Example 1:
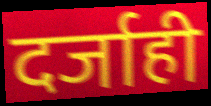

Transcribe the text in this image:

दर्जाही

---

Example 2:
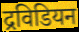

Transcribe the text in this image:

द्रविडियन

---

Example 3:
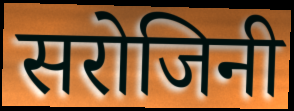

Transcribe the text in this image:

सरोजिनी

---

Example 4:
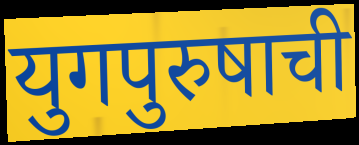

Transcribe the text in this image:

युगपुरुषाची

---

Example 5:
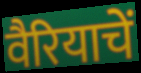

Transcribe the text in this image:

वैरियाचें